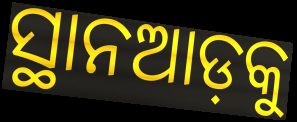
ସ୍ଥାନଆଡ଼କୁ